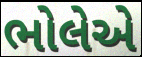
ભોલેએ